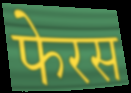
फेरस